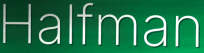
Halfman